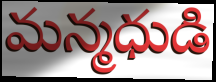
మన్మధుడి